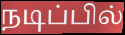
நடிப்பில்